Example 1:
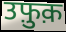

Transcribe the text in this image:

उफ़ुक़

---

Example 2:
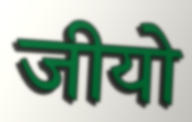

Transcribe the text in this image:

जीयो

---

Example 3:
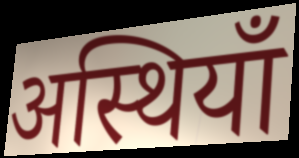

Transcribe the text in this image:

अस्थियाँ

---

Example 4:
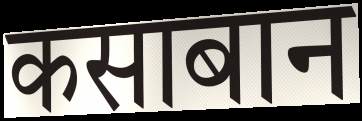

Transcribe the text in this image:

कसाबान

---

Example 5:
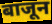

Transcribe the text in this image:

बाजून